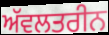
ਅੱਵਲਤਰੀਨ